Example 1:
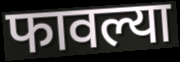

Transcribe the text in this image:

फावल्या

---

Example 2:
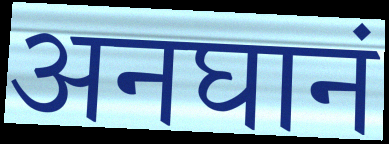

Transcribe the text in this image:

अनघानं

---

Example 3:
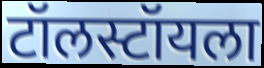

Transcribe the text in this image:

टॉलस्टॉयला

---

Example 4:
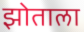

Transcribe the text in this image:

झोताला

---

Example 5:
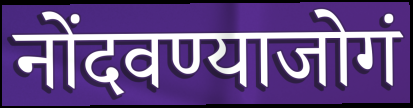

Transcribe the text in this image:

नोंदवण्याजोगं